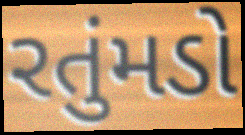
રતુંમડો